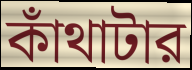
কাঁথাটার